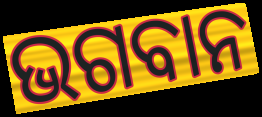
ଭଗବାନ